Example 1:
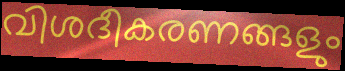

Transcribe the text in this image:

വിശദീകരണങ്ങളും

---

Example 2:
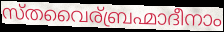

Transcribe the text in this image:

സ്തവൈര്ബ്രഹ്മാദീനാം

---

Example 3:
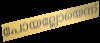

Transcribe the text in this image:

പോയല്ലോയെന്ന്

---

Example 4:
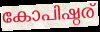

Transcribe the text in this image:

കോപിഷ്ഠര്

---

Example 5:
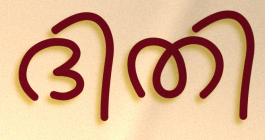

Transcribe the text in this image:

ദിതി